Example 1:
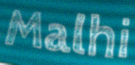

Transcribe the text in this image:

Malhi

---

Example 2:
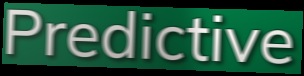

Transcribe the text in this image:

Predictive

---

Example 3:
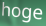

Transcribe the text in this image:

hoge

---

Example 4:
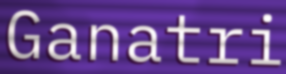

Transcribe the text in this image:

Ganatri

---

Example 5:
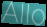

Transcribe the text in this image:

Allo